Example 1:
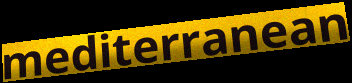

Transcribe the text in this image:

mediterranean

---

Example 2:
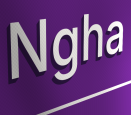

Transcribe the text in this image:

Ngha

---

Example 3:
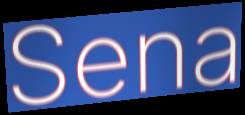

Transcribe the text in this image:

Sena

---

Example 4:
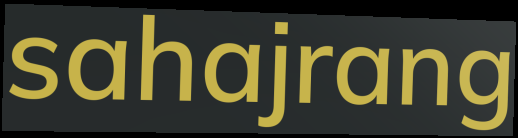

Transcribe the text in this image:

sahajrang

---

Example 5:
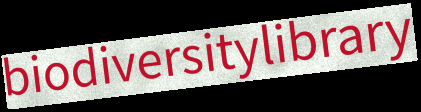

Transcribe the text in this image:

biodiversitylibrary